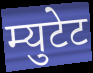
म्युटेट